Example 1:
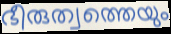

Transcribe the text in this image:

ഭീരുത്വത്തെയും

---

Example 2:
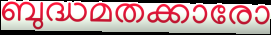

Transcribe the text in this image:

ബുദ്ധമതക്കാരോ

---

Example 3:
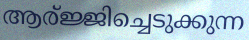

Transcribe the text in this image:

ആര്ജ്ജിച്ചെടുക്കുന്ന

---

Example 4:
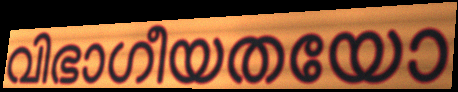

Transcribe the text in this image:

വിഭാഗീയതയോ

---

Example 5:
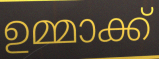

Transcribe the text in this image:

ഉമ്മാക്ക്